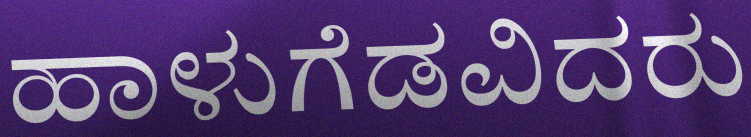
ಹಾಳುಗೆಡವಿದರು